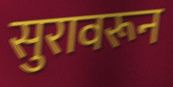
सुरावरून